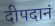
दीपदानं